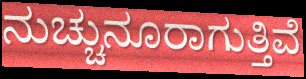
ನುಚ್ಚುನೂರಾಗುತ್ತಿವೆ